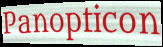
Panopticon